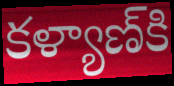
కళ్యాణ్‍కి